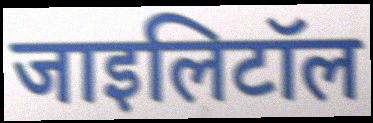
जाइलिटॉल